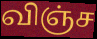
விஞ்ச